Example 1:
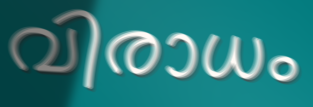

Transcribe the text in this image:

വിരാധം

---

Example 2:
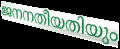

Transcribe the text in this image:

ജനനതീയതിയും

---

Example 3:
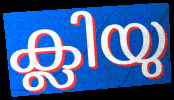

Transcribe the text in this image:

ക്ലിയു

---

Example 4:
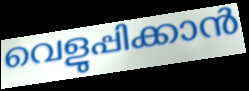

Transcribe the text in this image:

വെളുപ്പിക്കാൻ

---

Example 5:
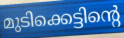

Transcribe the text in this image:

മുടിക്കെട്ടിന്റെ